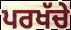
ਪਰਖੱਚੇ